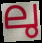
ലു